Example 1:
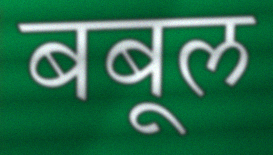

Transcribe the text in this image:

बबूल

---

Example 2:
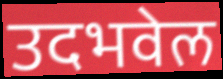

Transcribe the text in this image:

उदभवेल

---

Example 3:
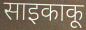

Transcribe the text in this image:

साइकाकू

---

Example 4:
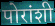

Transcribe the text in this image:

पोरांशी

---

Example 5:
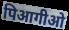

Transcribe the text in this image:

पिआगीओ